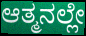
ಆತ್ಮನಲ್ಲೇ